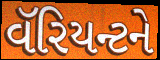
વૅરિયન્ટને